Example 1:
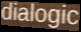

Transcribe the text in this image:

dialogic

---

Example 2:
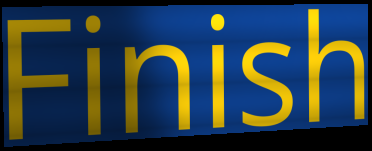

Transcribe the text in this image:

Finish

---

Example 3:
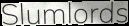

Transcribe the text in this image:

Slumlords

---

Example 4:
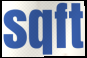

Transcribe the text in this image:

sqft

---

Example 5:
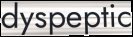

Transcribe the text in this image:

dyspeptic